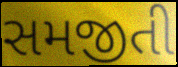
સમજીતી